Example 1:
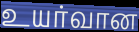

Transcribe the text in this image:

உயர்வான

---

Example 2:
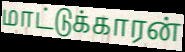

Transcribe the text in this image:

மாட்டுக்காரன்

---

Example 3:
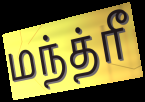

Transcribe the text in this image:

மந்த்ரீ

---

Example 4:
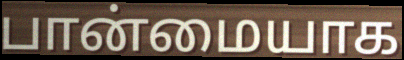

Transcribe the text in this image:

பான்மையாக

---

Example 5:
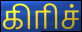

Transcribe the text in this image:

கிரிச்